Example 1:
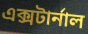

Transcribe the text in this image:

এক্সটার্নাল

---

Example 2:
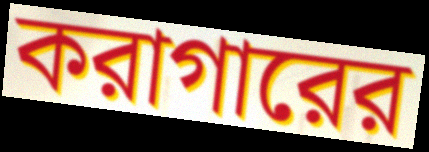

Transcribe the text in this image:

করাগারের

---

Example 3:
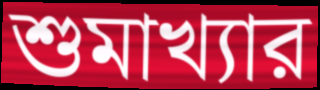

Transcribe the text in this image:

শুমাখ্যার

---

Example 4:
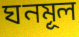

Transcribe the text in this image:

ঘনমূল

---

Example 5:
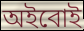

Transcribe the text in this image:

অইবোই